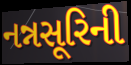
નન્નસૂરિની